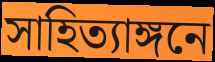
সাহিত্যাঙ্গনে